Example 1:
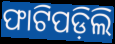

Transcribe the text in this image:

ଫାଟିପଡ଼ିଲି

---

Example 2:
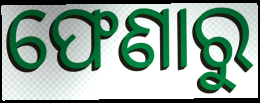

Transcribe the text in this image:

ଫେଣାରୁ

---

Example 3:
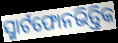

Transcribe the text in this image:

ସ୍ମାର୍ଟଫୋନଭିତ୍ତିକ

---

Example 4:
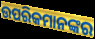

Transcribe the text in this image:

ଉପରିକମାନଙ୍କର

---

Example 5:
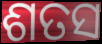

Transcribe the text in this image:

ଶତସ